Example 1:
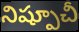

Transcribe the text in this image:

నిష్పూచీ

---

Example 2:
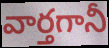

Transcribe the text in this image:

వార్తగానీ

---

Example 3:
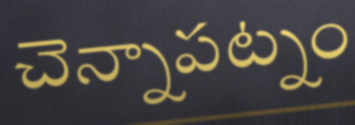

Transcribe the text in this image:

చెన్నాపట్నం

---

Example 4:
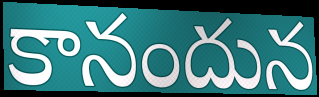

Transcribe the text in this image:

కానందున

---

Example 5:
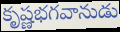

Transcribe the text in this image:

కృష్ణభగవానుడు